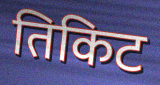
तिकिट